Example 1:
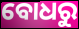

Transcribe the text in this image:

ବୋଧରୁ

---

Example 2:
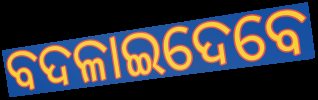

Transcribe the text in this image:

ବଦଳାଇଦେବେ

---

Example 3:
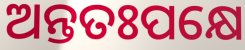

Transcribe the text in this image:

ଅନ୍ତତଃପକ୍ଷେ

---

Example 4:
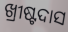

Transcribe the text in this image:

ଖ୍ରୀଷ୍ଟଦାସ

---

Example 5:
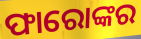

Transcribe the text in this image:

ଫାରୋଙ୍କର